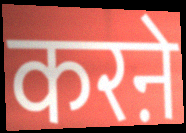
करऩे